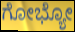
ಗೋಭ್ಯೋ